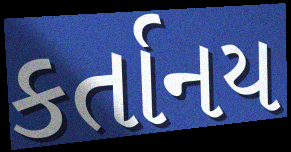
કર્તાનય